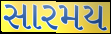
સારમય